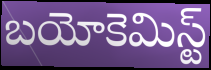
బయోకెమిస్ట్